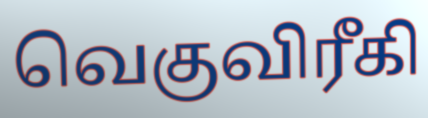
வெகுவிரீகி